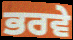
ਭਰਵੇ